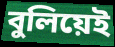
বুলিয়েই